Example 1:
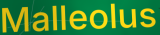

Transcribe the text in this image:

Malleolus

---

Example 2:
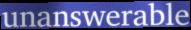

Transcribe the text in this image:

unanswerable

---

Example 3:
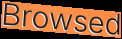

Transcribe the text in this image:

Browsed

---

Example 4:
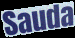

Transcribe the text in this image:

Sauda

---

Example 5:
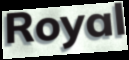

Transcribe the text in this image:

Royal